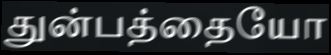
துன்பத்தையோ